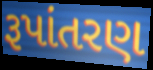
રૂપાંતરણ